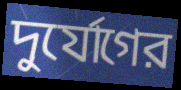
দুর্যোগের